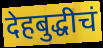
देहबुद्धीचं